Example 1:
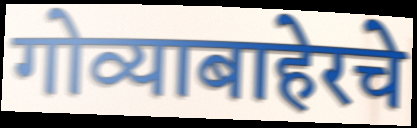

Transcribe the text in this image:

गोव्याबाहेरचे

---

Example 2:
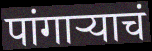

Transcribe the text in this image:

पांगाऱ्याचं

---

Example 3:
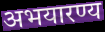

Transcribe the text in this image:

अभयारण्य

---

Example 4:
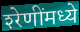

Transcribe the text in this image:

श्रेणींमध्ये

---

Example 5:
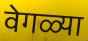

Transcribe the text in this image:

वेगळ्या